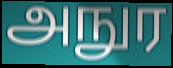
அநுர